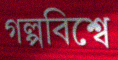
গল্পবিশ্বে